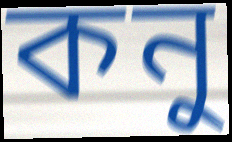
কনু